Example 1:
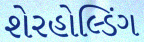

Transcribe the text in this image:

શેરહોલ્ડિંગ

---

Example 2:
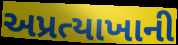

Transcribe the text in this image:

અપ્રત્યાખાની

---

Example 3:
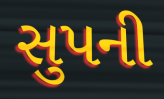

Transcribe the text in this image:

સુપની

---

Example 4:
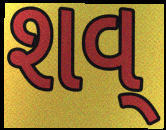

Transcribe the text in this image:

શવ્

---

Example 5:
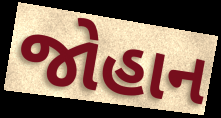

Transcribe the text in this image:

જોહાન